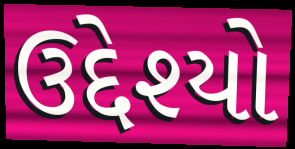
ઉદ્દેશ્યો